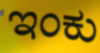
ಇಂಕು